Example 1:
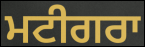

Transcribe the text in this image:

ਮਟੀਗਰਾ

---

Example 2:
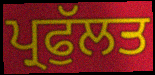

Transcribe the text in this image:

ਪ੍ਰਫੁੱਲਤ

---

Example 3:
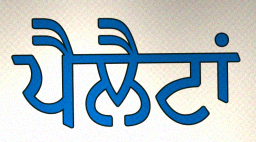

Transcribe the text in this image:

ਪੈਲੈਟਾਂ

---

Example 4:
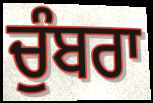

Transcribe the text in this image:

ਚੁੰਬਰਾ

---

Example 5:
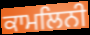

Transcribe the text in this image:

ਕਾਮਲਿਨੀ